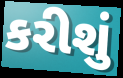
કરીશું